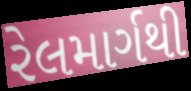
રેલમાર્ગથી